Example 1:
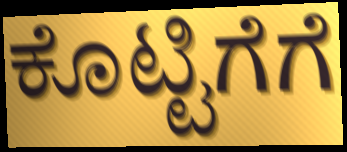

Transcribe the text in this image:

ಕೊಟ್ಟಿಗೆಗೆ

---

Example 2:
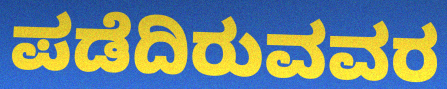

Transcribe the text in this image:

ಪಡೆದಿರುವವರ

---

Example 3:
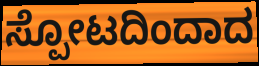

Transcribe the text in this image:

ಸ್ಪೋಟದಿಂದಾದ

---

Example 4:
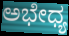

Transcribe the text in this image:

ಅಭೇಧ್ಯ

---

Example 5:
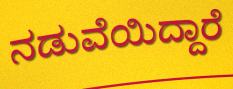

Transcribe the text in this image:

ನಡುವೆಯಿದ್ದಾರೆ